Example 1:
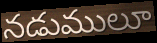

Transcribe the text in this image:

నడుములూ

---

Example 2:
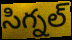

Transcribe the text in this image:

సిగ్నల్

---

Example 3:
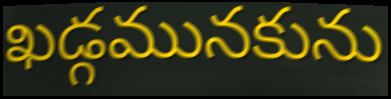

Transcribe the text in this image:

ఖడ్గమునకును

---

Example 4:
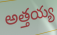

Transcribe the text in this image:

అత్తయ్య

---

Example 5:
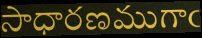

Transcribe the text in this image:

సాధారణముగాఁ